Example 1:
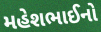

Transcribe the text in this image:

મહેશભાઈનો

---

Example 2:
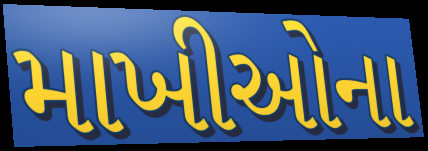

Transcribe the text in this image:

માખીઓના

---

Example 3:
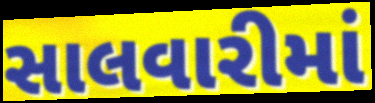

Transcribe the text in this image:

સાલવારીમાં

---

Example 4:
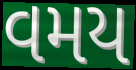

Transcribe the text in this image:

વમય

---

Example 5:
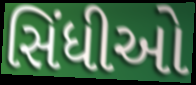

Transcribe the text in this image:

સિંધીઓ